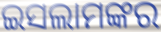
ଇସଲାମଙ୍କର